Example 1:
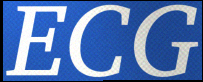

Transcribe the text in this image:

ECG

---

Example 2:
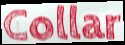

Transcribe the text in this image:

Collar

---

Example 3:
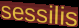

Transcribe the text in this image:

sessilis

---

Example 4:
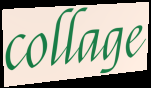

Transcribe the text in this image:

collage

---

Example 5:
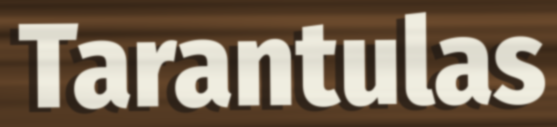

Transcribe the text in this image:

Tarantulas